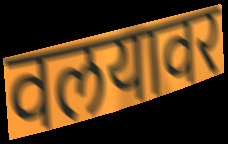
वलयावर